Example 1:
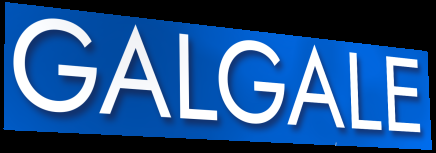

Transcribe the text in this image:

GALGALE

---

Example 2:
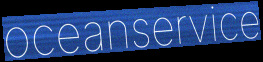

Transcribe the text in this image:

oceanservice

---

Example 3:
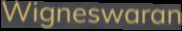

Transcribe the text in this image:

Wigneswaran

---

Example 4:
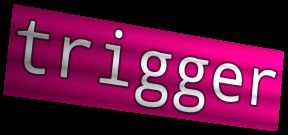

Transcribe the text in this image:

trigger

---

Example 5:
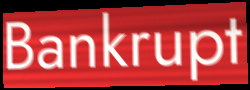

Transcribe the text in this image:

Bankrupt